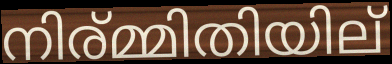
നിര്മ്മിതിയില്